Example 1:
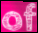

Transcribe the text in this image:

of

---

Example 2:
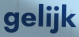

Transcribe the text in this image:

gelijk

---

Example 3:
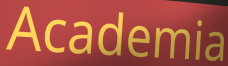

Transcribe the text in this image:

Academia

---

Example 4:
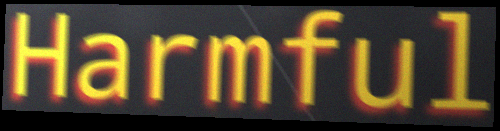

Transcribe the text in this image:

Harmful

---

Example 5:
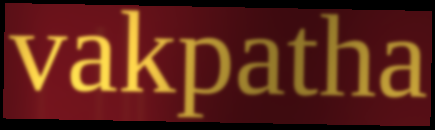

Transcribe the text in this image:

vakpatha